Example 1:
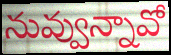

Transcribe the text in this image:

నువ్వున్నావో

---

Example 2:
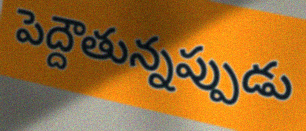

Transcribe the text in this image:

పెద్దౌతున్నప్పుడు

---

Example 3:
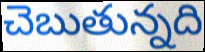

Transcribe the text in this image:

చెబుతున్నది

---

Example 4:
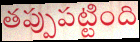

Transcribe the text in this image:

తప్పుపట్టింది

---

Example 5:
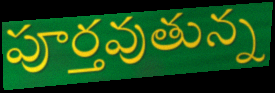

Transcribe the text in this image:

పూర్తవుతున్న